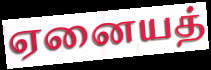
ஏனையத்